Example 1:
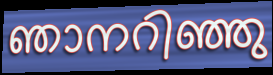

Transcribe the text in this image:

ഞാനറിഞ്ഞു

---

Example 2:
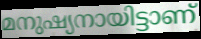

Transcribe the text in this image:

മനുഷ്യനായിട്ടാണ്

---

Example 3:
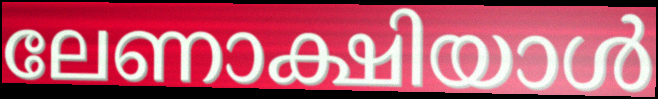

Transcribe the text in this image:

ലേണാക്ഷിയാൾ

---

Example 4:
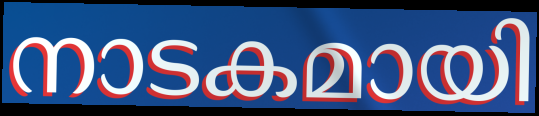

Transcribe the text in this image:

നാടകമായി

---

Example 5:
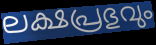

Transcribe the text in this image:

ലക്ഷപ്രഭുവും